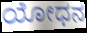
ಯೋಧನ